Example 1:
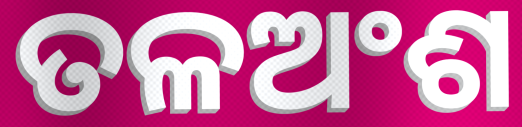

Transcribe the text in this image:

ତଳଅଂଶ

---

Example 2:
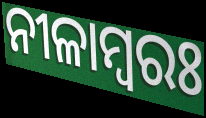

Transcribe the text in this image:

ନୀଳାମ୍ବରଃ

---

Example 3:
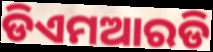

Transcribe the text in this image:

ଡିଏମଆରଡି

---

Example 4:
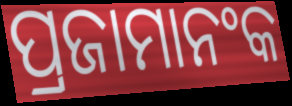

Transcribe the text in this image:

ପ୍ରଜାମାନଂକ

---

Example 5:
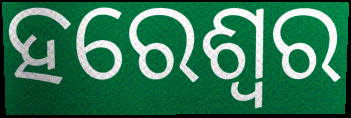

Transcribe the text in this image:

ହରେଶ୍ୱର